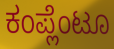
ಕಂಪ್ಲೆಂಟೂ